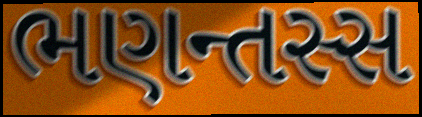
ભણન્તસ્સ